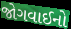
જોગવાઈનો